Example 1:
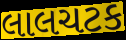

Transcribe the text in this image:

લાલચટક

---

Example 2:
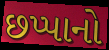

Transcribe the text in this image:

છપ્પાનો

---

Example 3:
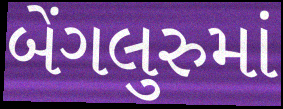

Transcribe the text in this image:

બેંગલુરુમાં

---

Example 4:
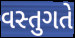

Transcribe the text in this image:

વસ્તુગતે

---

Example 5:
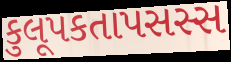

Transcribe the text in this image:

કુલૂપકતાપસસ્સ